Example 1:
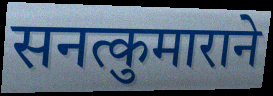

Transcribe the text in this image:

सनत्कुमाराने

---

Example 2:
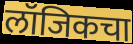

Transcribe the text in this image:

लॉजिकचा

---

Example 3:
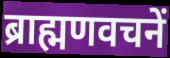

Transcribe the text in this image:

ब्राह्मणवचनें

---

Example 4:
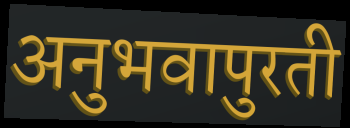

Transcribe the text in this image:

अनुभवापुरती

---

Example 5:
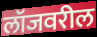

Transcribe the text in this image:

लॉजवरील